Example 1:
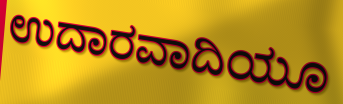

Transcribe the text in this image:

ಉದಾರವಾದಿಯೂ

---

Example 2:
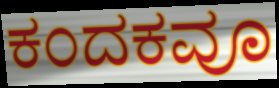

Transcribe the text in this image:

ಕಂದಕವೂ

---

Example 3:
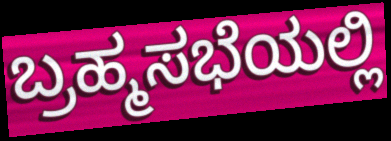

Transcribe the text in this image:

ಬ್ರಹ್ಮಸಭೆಯಲ್ಲಿ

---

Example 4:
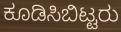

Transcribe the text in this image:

ಕೂಡಿಸಿಬಿಟ್ಟರು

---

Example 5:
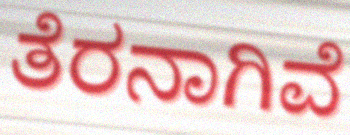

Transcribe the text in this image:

ತೆರನಾಗಿವೆ